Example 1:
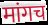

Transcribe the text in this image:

मांगच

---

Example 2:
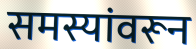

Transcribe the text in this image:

समस्यांवरून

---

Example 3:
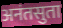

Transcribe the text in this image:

अनंतसुता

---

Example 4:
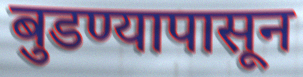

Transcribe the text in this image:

बुडण्यापासून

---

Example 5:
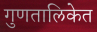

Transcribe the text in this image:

गुणतालिकेत